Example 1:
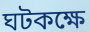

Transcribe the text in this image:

ঘটকক্ষে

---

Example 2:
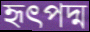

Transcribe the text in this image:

হৃৎপদ্ম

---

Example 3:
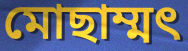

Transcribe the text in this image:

মোছাম্মৎ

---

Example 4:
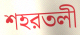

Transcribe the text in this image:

শহরতলী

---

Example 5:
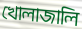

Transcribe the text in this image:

খোলাজালি